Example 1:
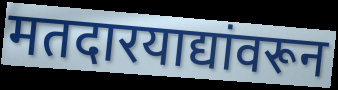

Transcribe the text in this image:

मतदारयाद्यांवरून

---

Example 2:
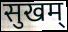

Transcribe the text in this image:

सुखम्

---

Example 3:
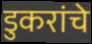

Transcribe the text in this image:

डुकरांचे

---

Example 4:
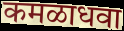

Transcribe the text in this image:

कमळाधवा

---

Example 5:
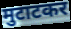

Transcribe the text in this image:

मुटाटकर